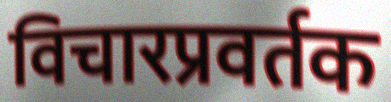
विचारप्रवर्तक